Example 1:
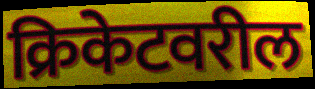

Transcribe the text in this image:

क्रिकेटवरील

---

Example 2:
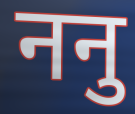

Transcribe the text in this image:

ननु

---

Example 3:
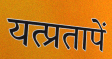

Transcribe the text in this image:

यत्प्रतापें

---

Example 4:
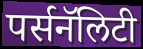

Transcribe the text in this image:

पर्सनॅलिटी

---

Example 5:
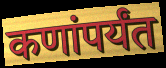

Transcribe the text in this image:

कणांपर्यंत